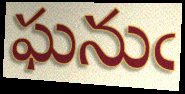
ఘనుఁ